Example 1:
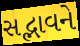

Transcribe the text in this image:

સદ્ભાવને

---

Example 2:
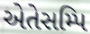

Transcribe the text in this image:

એતેસમ્પિ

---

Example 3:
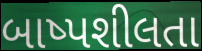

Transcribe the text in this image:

બાષ્પશીલતા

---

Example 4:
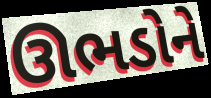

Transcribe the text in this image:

ઊભડોને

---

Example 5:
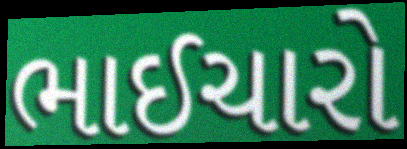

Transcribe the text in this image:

ભાઈચારો